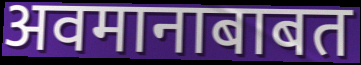
अवमानाबाबत